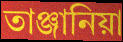
তাঞ্জানিয়া